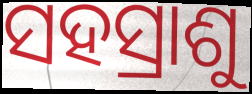
ସହସ୍ରାଶୁ